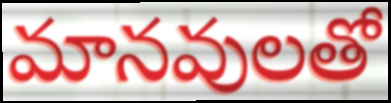
మానవులతో